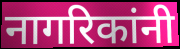
नागरिकांनी